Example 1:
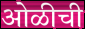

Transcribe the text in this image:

ओळीची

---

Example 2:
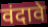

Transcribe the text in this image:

वंदावे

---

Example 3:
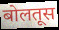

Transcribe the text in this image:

बोलतूस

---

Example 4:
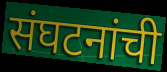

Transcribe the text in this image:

संघटनांची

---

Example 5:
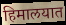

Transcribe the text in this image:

हिमालयात